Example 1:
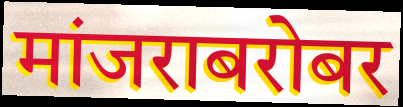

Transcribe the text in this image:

मांजराबरोबर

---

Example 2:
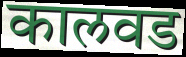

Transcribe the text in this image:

कालवड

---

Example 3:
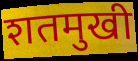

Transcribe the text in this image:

शतमुखी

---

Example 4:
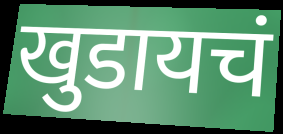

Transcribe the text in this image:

खुडायचं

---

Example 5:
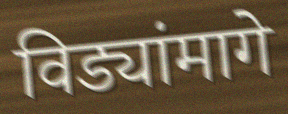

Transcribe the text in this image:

विड्यांमागे